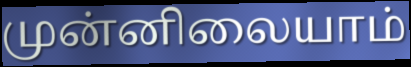
முன்னிலையாம்